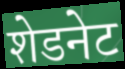
शेडनेट